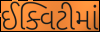
ઈક્વિટીમાં